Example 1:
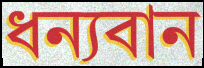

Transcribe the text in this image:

ধন্যবান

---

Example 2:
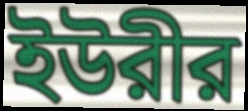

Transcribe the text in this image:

ইউরীর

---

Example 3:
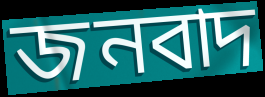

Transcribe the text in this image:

জনবাদ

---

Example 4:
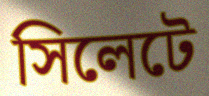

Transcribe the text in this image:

সিলেটে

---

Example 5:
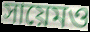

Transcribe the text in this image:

সায়েমও